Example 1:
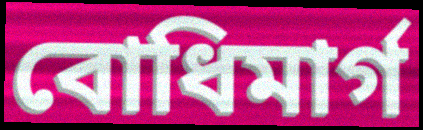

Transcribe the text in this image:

বোধিমার্গ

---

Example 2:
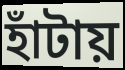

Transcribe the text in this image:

হাঁটায়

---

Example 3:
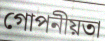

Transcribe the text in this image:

গোপনীয়তা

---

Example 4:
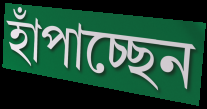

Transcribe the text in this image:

হাঁপাচ্ছেন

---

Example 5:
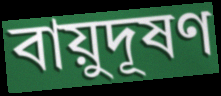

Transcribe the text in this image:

বায়ুদূষণ